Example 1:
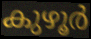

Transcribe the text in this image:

കുഴൂർ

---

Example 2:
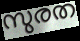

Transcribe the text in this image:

സുരത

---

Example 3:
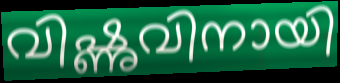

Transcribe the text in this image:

വിഷ്ണുവിനായി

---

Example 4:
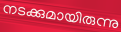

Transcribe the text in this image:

നടക്കുമായിരുന്നു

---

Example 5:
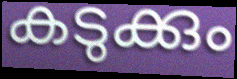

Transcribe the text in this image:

കടുക്കും